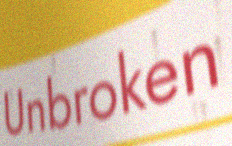
Unbroken